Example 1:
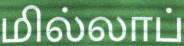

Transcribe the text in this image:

மில்லாப்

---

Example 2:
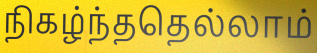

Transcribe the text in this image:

நிகழ்ந்ததெல்லாம்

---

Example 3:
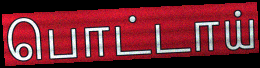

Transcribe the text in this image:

பொட்டாய்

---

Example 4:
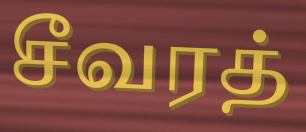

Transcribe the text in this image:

சீவரத்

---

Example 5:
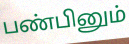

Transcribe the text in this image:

பண்பினும்